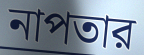
নাপতার